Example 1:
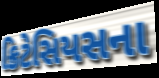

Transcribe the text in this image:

ક્રિટેસિયસના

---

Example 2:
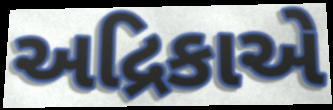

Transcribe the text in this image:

અદ્રિકાએ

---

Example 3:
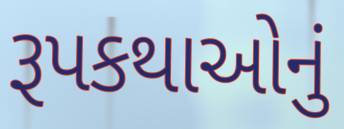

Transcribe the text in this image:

રૂપકથાઓનું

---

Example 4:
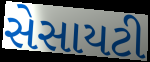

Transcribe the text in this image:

સેસાયટી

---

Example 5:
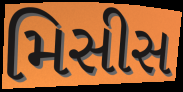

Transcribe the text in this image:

મિસીસ